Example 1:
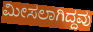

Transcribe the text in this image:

ಮೀಸಲಾಗಿದ್ದವು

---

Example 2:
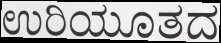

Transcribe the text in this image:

ಉರಿಯೂತದ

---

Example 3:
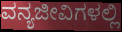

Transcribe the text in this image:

ವನ್ಯಜೀವಿಗಳಲ್ಲಿ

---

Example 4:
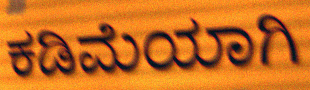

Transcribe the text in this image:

ಕಡಿಮೆಯಾಗಿ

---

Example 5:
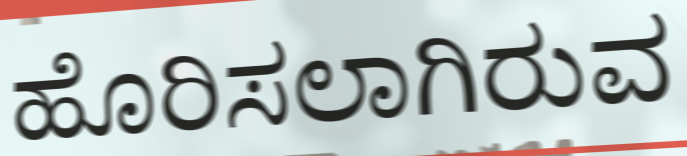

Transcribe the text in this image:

ಹೊರಿಸಲಾಗಿರುವ